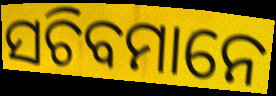
ସଚିବମାନେ